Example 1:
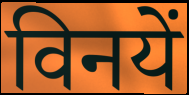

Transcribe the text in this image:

विनयें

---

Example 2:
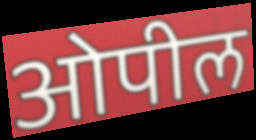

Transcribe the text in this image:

ओपील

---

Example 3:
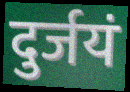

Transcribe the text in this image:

दुर्जयं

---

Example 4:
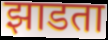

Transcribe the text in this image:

झाडता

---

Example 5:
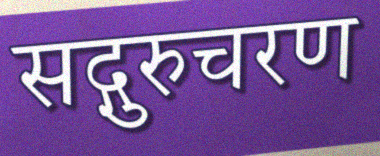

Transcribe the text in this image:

सद्गुरुचरण